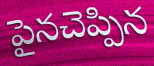
పైనచెప్పిన